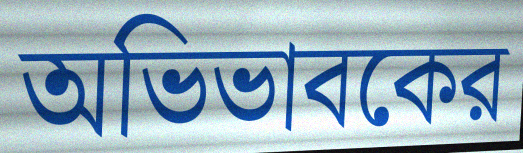
অভিভাবকের